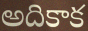
అదికాక